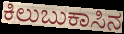
ಕಿಲುಬುಕಾಸಿನ